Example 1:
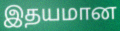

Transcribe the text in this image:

இதயமான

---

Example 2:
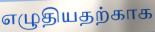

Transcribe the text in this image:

எழுதியதற்காக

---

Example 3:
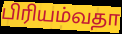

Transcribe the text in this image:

பிரியம்வதா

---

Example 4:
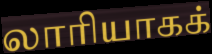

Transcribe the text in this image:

லாரியாகக்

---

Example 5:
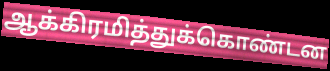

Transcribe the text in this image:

ஆக்கிரமித்துக்கொண்டன